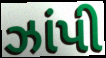
ઝાંપી